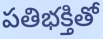
పతిభక్తితో